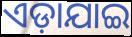
ଏଡ଼ାଯାଇ